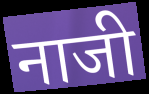
नाजी